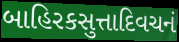
બાહિરકસુત્તાદિવચનં